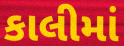
કાલીમાં